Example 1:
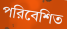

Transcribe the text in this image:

পরিবেশিত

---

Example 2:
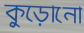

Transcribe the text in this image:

কুড়োনো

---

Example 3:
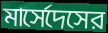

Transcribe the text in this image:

মার্সেদেসের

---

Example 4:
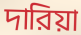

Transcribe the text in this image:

দারিয়া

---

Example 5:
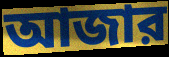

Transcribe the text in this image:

আজার